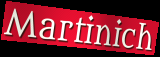
Martinich